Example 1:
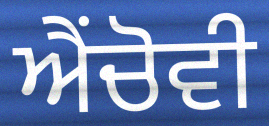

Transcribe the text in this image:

ਐਂਚੋਵੀ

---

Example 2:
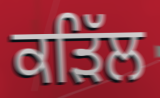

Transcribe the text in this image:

ਕੜਿੱਲ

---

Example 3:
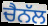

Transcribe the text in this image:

ਚੈਨੱਲ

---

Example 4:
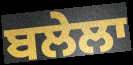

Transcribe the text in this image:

ਬਲੇਲਾ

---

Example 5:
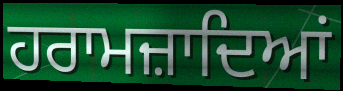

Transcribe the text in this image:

ਹਰਾਮਜ਼ਾਦਿਆਂ